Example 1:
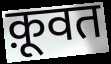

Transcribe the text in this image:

क़ूवत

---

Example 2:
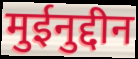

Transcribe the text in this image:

मुईनुद्दीन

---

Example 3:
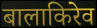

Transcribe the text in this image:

बालाकिरेव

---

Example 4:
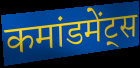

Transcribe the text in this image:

कमांडमेंट्स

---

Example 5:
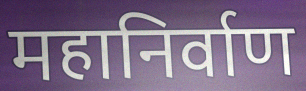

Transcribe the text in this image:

महानिर्वाण